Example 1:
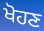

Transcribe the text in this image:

ਖੋਹਣ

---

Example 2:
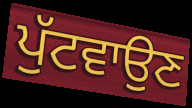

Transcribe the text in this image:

ਪੁੱਟਵਾਉਣ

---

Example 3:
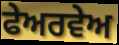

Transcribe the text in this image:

ਫੇਅਰਵੇਅ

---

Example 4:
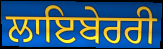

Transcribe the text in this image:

ਲਾਇਬੇਰਰੀ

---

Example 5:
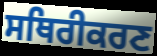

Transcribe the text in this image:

ਸਥਿਰੀਕਰਣ